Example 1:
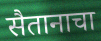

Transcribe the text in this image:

सैतानाचा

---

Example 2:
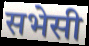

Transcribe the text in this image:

सभेसी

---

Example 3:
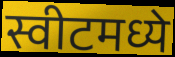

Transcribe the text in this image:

स्वीटमध्ये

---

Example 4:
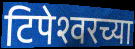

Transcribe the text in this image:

टिपेश्वरच्या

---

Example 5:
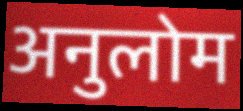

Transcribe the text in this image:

अनुलोम